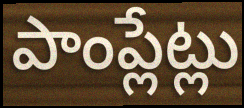
పాంప్లేట్లు